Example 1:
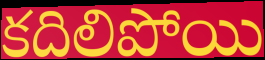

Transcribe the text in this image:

కదిలిపోయి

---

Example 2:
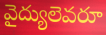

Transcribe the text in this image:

వైద్యులెవరూ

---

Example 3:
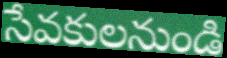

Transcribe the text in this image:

సేవకులనుండి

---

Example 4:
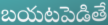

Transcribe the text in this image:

బయటపెడితే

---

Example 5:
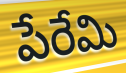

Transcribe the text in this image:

పేరేమి